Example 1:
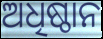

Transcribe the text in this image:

ଅଧିଷ୍ଠାନ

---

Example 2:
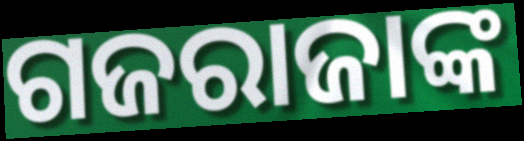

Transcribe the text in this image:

ଗଜରାଜାଙ୍କ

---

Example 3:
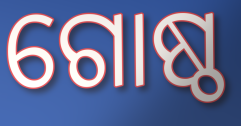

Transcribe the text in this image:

ଗୋଷ୍ଠ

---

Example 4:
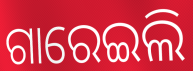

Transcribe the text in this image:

ଗାରେଇଲି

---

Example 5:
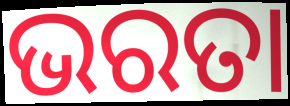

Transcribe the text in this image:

ଭରତା